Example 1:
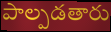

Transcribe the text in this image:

పాల్పడతారు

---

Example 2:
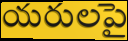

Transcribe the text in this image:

యరులపై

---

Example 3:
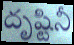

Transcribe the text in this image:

దృష్టినీ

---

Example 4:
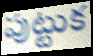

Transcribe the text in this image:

పుట్టుక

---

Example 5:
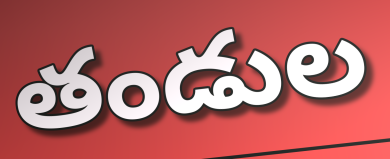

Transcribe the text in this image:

తండుల